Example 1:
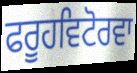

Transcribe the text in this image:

ਫਰੂਹਵਿਟੋਰਵਾ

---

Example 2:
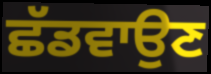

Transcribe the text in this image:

ਛੱਡਵਾਉਣ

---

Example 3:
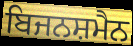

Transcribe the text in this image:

ਬਿਜਨਸ਼ਮੈਨ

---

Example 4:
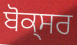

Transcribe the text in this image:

ਬੋਕ੍ਸਰ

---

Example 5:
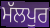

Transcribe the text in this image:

ਮੱਲਪੁਰ